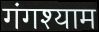
गंगश्याम